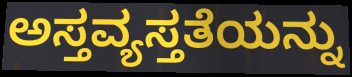
ಅಸ್ತವ್ಯಸ್ತತೆಯನ್ನು